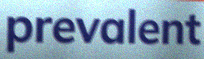
prevalent